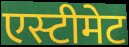
एस्‍टीमेट